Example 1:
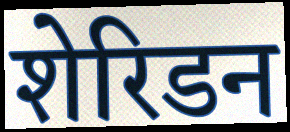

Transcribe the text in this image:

शेरिडन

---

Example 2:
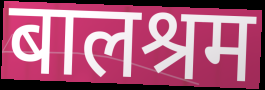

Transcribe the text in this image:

बालश्रम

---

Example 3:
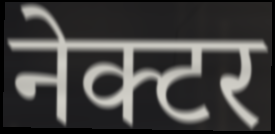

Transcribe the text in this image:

नेक्टर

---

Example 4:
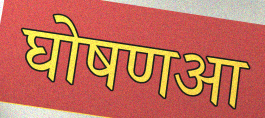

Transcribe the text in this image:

घोषणआ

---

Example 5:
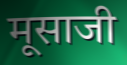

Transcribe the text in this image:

मूसाजी